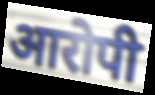
आरोपी